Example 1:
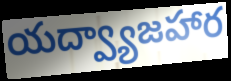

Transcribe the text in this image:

యద్వ్యాజహార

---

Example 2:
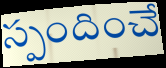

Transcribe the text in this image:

స్పందించే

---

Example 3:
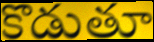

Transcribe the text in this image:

కొడుతూ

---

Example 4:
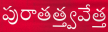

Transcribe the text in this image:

పురాతత్త్వవేత్త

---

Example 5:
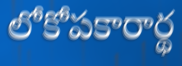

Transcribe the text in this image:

లోకోపకారార్థ